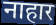
नाहार